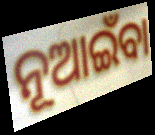
ନୂଆଇଁବା